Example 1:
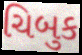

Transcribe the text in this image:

ચિબુક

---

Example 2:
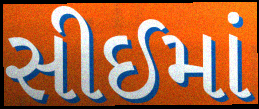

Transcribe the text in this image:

સીઈમાં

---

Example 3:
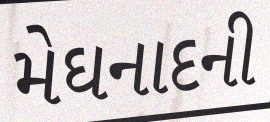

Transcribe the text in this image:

મેઘનાદની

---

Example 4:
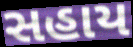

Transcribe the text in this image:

સહાય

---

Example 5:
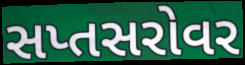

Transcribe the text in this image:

સપ્તસરોવર